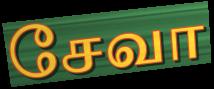
சேவா